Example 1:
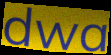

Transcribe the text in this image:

dwa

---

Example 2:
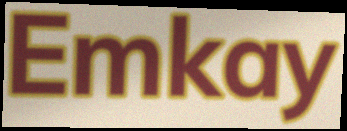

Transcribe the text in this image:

Emkay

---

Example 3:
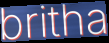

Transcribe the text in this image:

britha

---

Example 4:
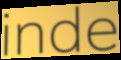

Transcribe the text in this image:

inde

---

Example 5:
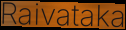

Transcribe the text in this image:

Raivataka